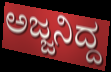
ಅಜ್ಜನಿದ್ದ